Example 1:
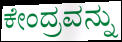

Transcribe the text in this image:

ಕೇಂದ್ರವನ್ನು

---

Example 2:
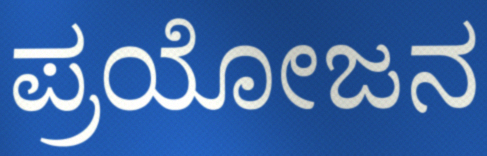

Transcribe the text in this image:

ಪ್ರಯೋಜನ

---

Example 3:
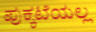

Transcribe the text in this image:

ಪುಕ್ಕಟೆಯಲ್ಲ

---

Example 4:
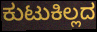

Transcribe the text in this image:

ಕುಟುಕಿಲ್ಲದ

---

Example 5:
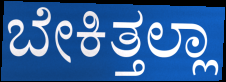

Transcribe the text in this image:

ಬೇಕಿತ್ತಲ್ಲಾ